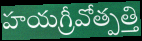
హయగ్రీవోత్పత్తి